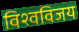
विश्वविजय